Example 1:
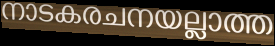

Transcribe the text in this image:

നാടകരചനയല്ലാത്ത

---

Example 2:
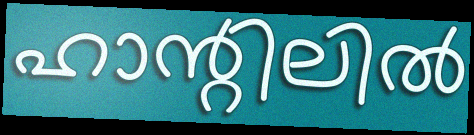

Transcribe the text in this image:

ഹാന്റിലിൽ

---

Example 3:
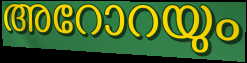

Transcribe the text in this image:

അറോറയും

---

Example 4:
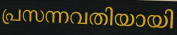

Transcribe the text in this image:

പ്രസന്നവതിയായി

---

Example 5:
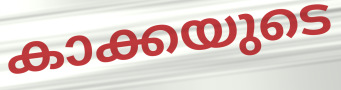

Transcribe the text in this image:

കാക്കയുടെ